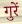
गुरें